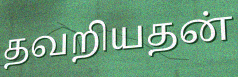
தவறியதன்